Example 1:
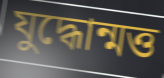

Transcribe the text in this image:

যুদ্ধোন্মত্ত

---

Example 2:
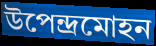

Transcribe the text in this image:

উপেন্দ্রমোহন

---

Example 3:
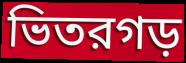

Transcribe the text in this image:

ভিতরগড়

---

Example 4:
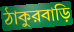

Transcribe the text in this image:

ঠাকুরবাড়ি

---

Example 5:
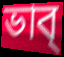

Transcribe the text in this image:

ভাব্